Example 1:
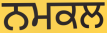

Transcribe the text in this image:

ਨਮਕਲ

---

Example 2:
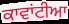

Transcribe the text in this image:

ਕਾਵਾਂਟੀਆ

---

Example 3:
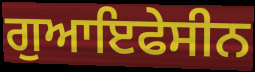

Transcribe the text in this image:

ਗੁਆਇਫੇਸੀਨ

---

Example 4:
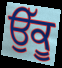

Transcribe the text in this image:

ਉੱਕੂ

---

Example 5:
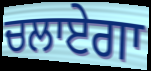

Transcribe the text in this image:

ਚਲਾਏਗਾ